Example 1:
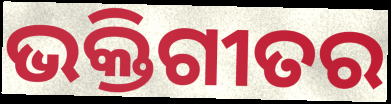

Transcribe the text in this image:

ଭକ୍ତିଗୀତର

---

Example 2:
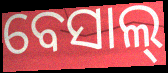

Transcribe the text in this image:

ବେସାଲ୍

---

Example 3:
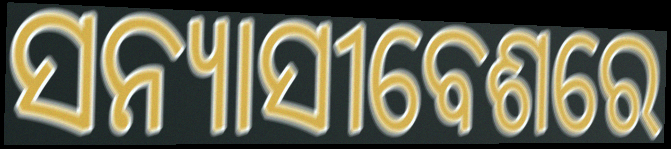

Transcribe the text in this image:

ସନ୍ୟାସୀବେଶରେ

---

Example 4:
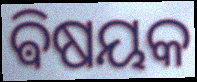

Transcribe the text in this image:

ଵିଷୟକ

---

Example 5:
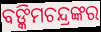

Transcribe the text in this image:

ବଙ୍କିମଚନ୍ଦ୍ରଙ୍କର